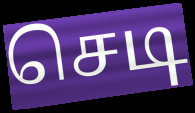
செடி